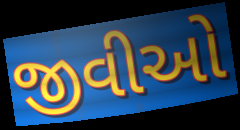
જીવીઓ